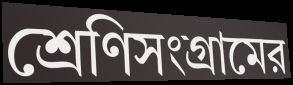
শ্রেণিসংগ্রামের